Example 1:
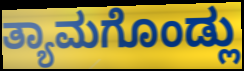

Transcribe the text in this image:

ತ್ಯಾಮಗೊಂಡ್ಲು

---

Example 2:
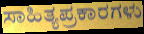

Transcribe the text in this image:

ಸಾಹಿತ್ಯಪ್ರಕಾರಗಳು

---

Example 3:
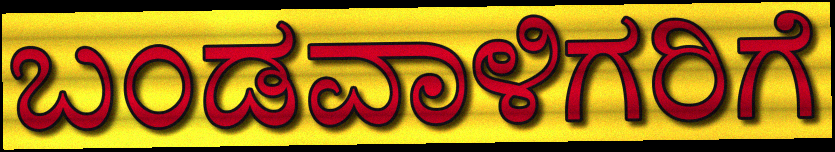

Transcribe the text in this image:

ಬಂಡವಾಳಿಗರಿಗೆ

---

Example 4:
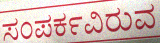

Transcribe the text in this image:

ಸಂಪರ್ಕವಿರುವ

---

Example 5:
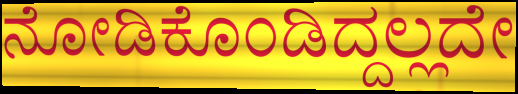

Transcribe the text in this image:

ನೋಡಿಕೊಂಡಿದ್ದಲ್ಲದೇ